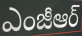
ఎంజీఆర్